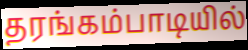
தரங்கம்பாடியில்